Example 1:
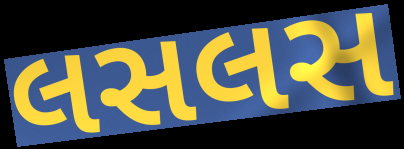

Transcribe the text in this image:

લસલસ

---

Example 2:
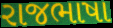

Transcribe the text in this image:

રાજભાષા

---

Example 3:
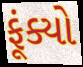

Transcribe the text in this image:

ફૂંક્યો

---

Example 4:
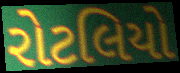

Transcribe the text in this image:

રોટલિયો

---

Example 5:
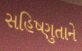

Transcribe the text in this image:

સહિષ્ણુતાને